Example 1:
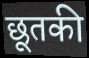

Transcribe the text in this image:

छूतकी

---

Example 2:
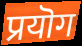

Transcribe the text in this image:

प्रयॊग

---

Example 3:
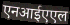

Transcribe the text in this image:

एनआईएएल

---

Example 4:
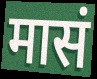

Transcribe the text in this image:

मासं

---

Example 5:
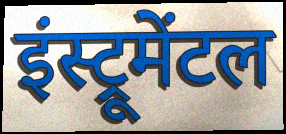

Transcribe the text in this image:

इंस्ट्रूमेंटल